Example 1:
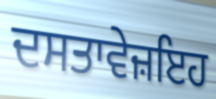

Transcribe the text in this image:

ਦਸਤਾਵੇਜ਼ਇਹ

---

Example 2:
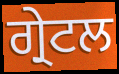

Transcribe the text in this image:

ਗ੍ਰੇਟਲ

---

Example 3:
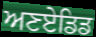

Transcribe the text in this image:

ਅਣਏਡਿਡ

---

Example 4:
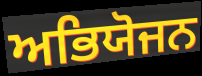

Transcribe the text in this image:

ਅਭਿਯੋਜਨ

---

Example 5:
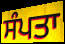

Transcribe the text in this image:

ਸੰਪਤਾ